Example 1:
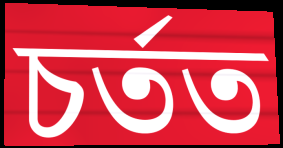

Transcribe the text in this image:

চৰ্তত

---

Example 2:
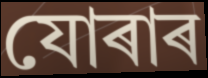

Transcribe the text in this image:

যোৰাৰ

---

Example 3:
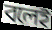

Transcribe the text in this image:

বলেই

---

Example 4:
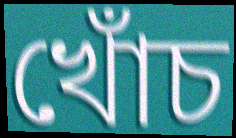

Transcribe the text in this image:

খোঁচ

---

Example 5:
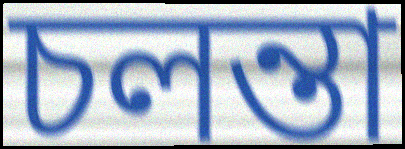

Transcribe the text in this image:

চলন্তা